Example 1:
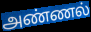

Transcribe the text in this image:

அண்ணல்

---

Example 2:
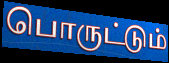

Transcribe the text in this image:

பொருட்டும்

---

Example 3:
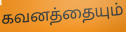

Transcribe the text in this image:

கவனத்தையும்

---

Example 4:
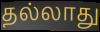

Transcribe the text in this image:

தல்லாது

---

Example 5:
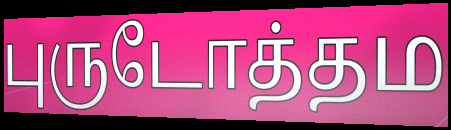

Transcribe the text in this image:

புருடோத்தம